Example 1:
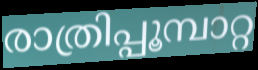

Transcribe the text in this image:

രാത്രിപ്പൂമ്പാറ്റ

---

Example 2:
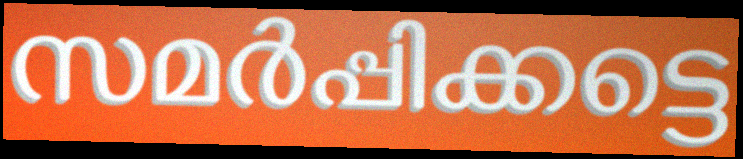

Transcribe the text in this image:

സമർപ്പിക്കട്ടെ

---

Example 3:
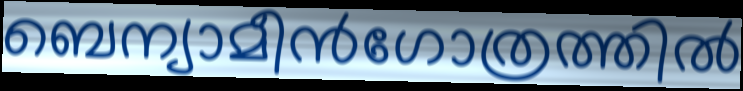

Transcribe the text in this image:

ബെന്യാമീൻഗോത്രത്തിൽ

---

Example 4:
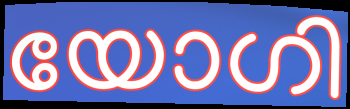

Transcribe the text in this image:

യോഗി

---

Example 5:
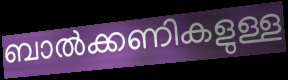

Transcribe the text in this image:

ബാൽക്കണികളുള്ള